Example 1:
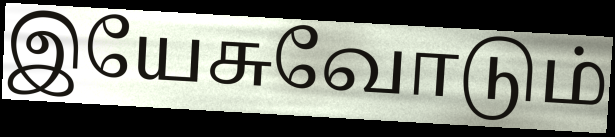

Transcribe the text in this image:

இயேசுவோடும்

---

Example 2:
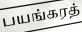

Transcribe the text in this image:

பயங்கரத்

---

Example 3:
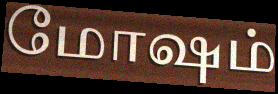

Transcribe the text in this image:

மோஷம்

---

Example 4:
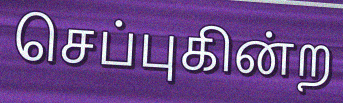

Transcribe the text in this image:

செப்புகின்ற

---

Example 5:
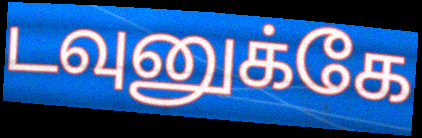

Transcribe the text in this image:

டவுனுக்கே